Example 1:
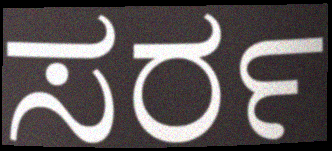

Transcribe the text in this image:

ಸರ್ರ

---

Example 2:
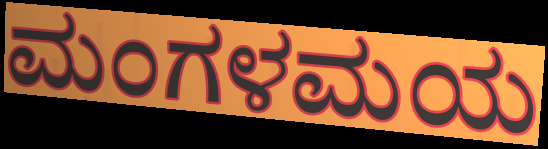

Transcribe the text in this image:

ಮಂಗಳಮಯ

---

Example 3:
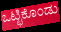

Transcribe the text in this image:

ಒಟ್ಟಿಕೊಂಡು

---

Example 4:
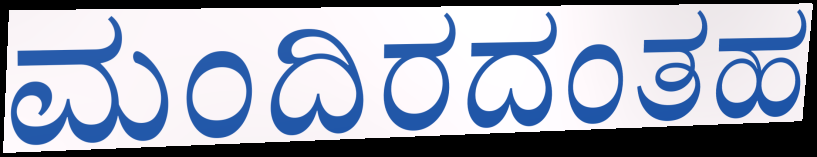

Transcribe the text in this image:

ಮಂದಿರದಂತಹ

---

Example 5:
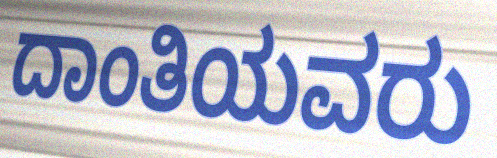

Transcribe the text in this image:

ದಾಂತಿಯವರು